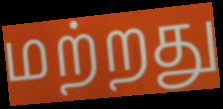
மற்றது